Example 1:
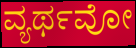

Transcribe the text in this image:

ವ್ಯರ್ಥವೋ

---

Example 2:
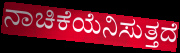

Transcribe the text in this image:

ನಾಚಿಕೆಯೆನಿಸುತ್ತದೆ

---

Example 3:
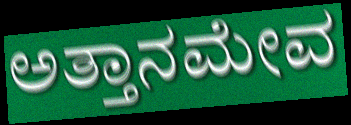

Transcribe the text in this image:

ಅತ್ತಾನಮೇವ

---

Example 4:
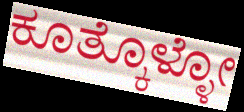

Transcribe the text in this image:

ಕೂತ್ಕೊಳ್ಳೋ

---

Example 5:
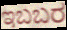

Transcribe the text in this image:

ಇಬಬರ